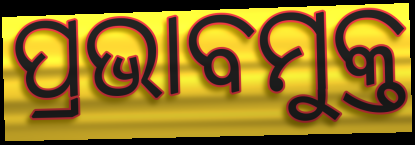
ପ୍ରଭାବମୁକ୍ତ